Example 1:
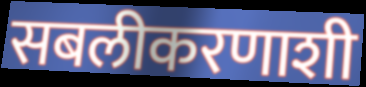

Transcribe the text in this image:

सबलीकरणाशी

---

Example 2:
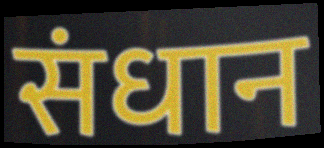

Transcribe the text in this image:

संधान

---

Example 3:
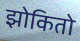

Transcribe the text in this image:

झोकितो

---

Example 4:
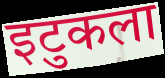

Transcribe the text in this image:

इटुकला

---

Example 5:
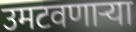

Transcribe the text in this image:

उमटवणार्‍या